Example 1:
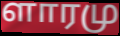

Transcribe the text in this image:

ளாரமு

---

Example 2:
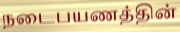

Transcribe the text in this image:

நடைபயணத்தின்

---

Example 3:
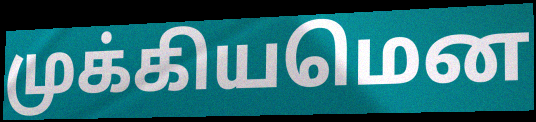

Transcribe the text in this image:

முக்கியமென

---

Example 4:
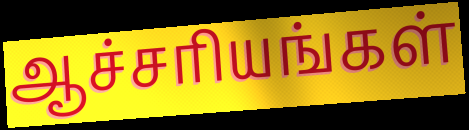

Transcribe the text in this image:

ஆச்சரியங்கள்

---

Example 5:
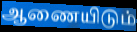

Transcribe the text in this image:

ஆணையிடும்